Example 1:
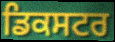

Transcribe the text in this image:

ਡਿਕਸਟਰ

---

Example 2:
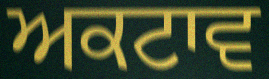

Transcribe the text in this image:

ਅਕਟਾਵ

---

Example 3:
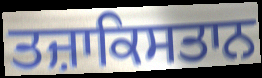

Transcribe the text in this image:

ਤਜ਼ਾਕਿਸਤਾਨ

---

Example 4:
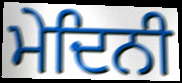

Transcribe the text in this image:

ਮੇਦਿਨੀ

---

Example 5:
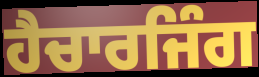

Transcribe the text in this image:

ਹੈਚਾਰਜਿੰਗ